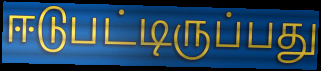
ஈடுபட்டிருப்பது